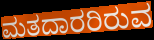
ಮತದಾರರಿರುವ